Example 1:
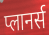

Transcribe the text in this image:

प्लानर्स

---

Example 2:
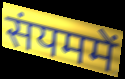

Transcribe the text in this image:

संयममें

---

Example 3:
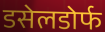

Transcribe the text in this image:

डसेलडोर्फ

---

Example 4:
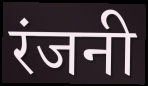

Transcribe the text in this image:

रंजनी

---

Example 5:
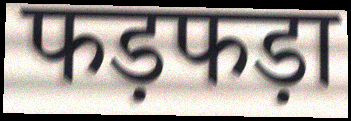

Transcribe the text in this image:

फड़फड़ा